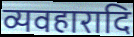
व्यवहारादि